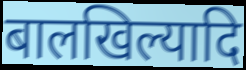
बालखिल्यादि